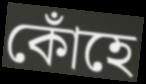
কোঁহে